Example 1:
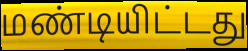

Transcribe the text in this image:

மண்டியிட்டது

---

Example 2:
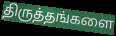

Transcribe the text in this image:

திருத்தங்களை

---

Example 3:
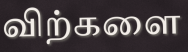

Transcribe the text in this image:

விற்களை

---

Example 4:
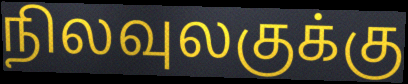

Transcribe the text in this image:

நிலவுலகுக்கு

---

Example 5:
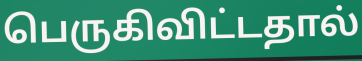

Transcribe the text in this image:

பெருகிவிட்டதால்